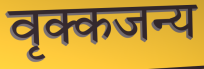
वृक्कजन्य